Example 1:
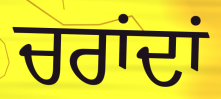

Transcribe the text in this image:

ਚਰਾਂਦਾਂ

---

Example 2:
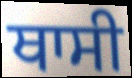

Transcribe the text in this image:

ਥਾਸੀ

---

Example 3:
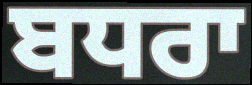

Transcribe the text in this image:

ਬਧਰਾ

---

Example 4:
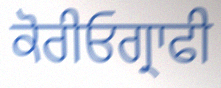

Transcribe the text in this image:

ਕੋਰੀਓਗ੍ਰਾਫੀ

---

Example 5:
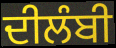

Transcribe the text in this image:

ਦੀਲੰਬੀ